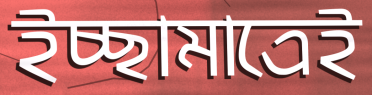
ইচ্ছামাত্রেই